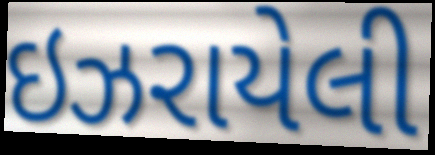
ઇઝરાયેલી